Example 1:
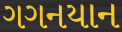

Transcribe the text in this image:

ગગનયાન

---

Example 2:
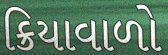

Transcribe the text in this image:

ક્રિયાવાળો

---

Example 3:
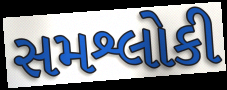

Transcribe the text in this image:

સમશ્લોકી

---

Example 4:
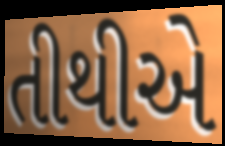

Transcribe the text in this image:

તીથીએ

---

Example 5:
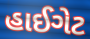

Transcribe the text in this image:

હાઈગેટ